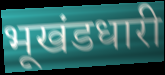
भूखंडधारी